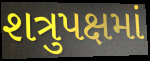
શત્રુપક્ષમાં